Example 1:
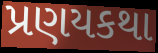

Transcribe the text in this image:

પ્રણયકથા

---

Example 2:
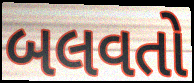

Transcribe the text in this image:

બલવતો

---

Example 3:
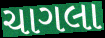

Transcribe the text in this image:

ચાગલા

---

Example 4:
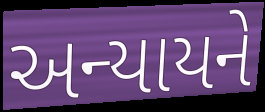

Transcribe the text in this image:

અન્યાયને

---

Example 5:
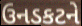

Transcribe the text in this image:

ઉનડકટને